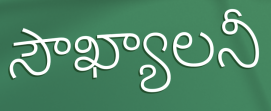
సౌఖ్యాలనీ